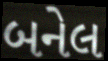
બનેલ